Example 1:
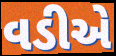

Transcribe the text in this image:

વડીએ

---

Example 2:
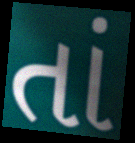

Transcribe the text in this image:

તાં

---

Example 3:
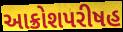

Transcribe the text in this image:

આક્રોશપરીષહ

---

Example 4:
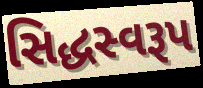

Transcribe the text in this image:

સિદ્ધસ્વરૂપ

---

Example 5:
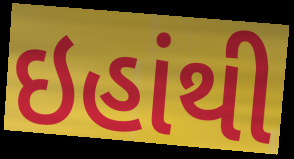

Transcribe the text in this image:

ઇહાંથી